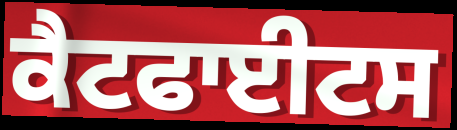
ਕੈਟਫਾਈਟਸ